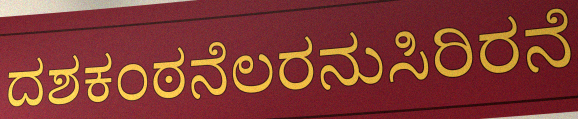
ದಶಕಂಠನೆಲರನುಸಿರಿರನೆ